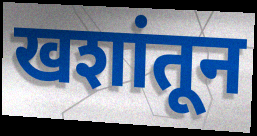
खशांतून